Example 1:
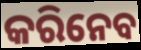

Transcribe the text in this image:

କରିନେବ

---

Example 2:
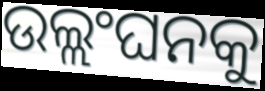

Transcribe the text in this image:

ଉଲ୍ଲଂଘନକୁ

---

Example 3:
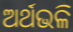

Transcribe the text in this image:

ଅର୍ଥଭଳି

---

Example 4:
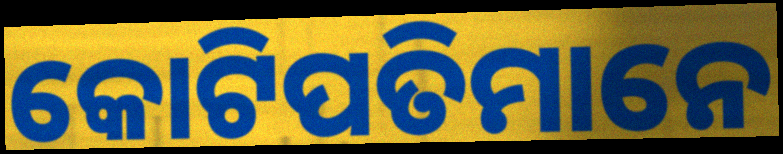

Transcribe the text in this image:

କୋଟିପତିମାନେ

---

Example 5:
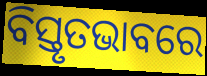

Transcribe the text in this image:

ବିସ୍ତୃତଭାବରେ